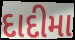
દાદીમા